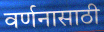
वर्णनासाठी